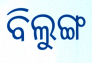
ବିଲୁଙ୍ଗ